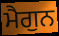
ਮੈਗੁਨ